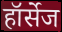
हॉर्सेज